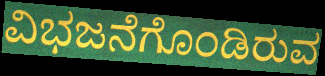
ವಿಭಜನೆಗೊಂಡಿರುವ